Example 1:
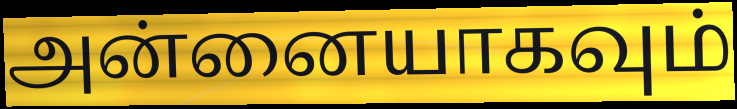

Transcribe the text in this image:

அன்னையாகவும்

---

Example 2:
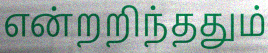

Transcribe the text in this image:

என்றறிந்ததும்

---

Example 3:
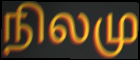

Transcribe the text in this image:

நிலமு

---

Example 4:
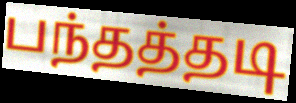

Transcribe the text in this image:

பந்தத்தடி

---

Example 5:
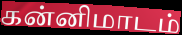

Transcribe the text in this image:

கன்னிமாடம்